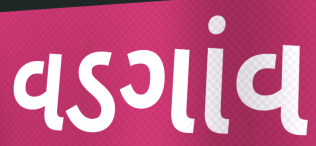
વડગાંવ